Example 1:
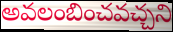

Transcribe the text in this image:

అవలంబించవచ్చని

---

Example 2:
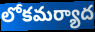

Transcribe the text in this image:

లోకమర్యాద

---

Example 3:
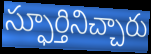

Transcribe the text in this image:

స్ఫూర్తినిచ్చారు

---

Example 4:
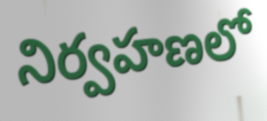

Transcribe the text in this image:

నిర్వహణలో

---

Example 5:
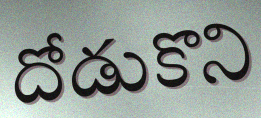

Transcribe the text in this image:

దోడుకొని